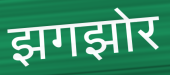
झगझोर